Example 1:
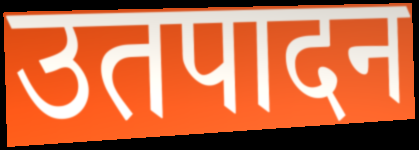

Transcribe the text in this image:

उतपादन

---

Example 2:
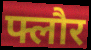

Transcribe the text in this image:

फ्लौर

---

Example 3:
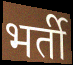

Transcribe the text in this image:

भर्ती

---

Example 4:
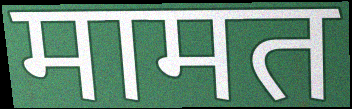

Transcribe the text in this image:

मामत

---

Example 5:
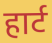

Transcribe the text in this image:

हार्ट